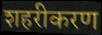
शहरीकरण